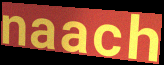
naach